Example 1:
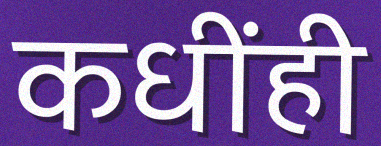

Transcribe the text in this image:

कधींही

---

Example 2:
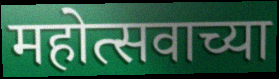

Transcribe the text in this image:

महोत्सवाच्या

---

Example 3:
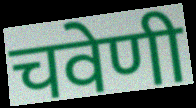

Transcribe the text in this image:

चवेणी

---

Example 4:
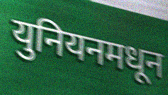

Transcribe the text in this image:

युनियनमधून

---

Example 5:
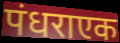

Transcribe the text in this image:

पंधराएक